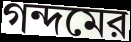
গন্দমের